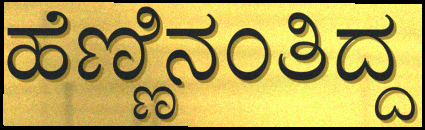
ಹೆಣ್ಣಿನಂತಿದ್ದ